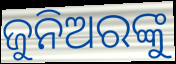
ଜୁନିଅରଙ୍କୁ